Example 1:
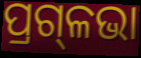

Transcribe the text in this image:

ପ୍ରଗ୍‌ଳଭା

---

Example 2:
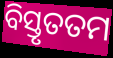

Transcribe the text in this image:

ବିସ୍ତୃତତମ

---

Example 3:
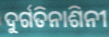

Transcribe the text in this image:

ଦୁର୍ଗତିନାଶିନୀ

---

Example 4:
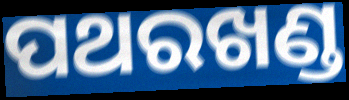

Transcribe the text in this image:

ପଥରଖଣ୍ଡ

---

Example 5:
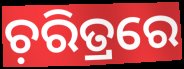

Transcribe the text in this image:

ଚ଼ରିତ୍ରରେ